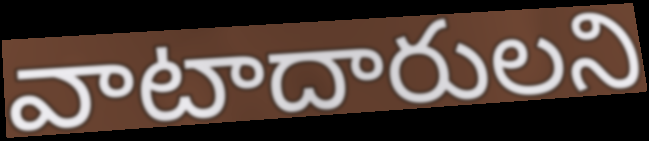
వాటాదారులని